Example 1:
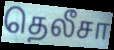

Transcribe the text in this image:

தெலீசா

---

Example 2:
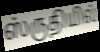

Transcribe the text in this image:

ஸ்ருதியில்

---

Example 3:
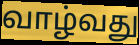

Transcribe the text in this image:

வாழ்வது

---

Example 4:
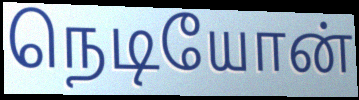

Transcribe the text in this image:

நெடியோன்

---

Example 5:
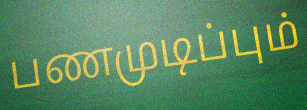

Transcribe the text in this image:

பணமுடிப்பும்